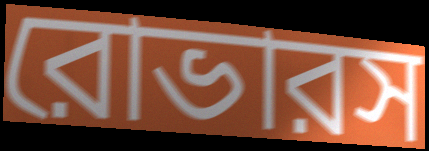
রোভারস